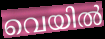
വെയിൽ